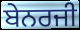
ਬੇਨਰਜੀ